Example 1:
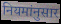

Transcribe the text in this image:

नियमांनुसार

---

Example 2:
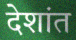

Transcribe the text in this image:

देशांत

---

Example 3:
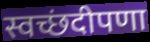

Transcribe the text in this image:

स्वच्छंदीपणा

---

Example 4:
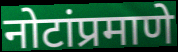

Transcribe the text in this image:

नोटांप्रमाणे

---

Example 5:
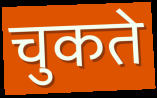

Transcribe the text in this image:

चुकते